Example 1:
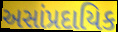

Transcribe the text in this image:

અસાંપ્રદાયિક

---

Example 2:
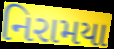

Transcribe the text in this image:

નિરામયા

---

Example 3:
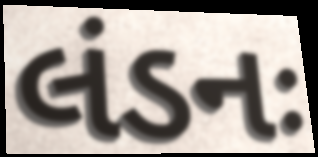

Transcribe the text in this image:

લંડનઃ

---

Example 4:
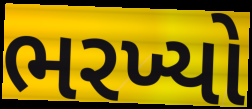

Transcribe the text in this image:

ભરખ્યો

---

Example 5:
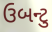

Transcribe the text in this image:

ઉબન્ટુ